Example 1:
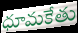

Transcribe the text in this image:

ధూమకేతు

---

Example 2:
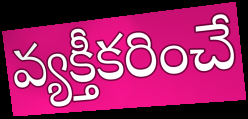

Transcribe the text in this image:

వ్యక్తీకరించే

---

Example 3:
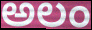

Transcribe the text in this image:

అలం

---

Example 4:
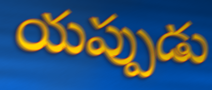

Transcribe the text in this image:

యప్పుడు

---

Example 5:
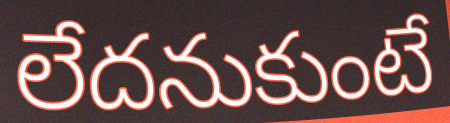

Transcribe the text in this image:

లేదనుకుంటే